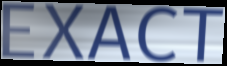
EXACT